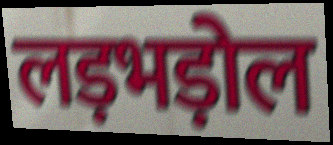
लड़भड़ोल